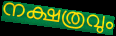
നക്ഷത്രവും